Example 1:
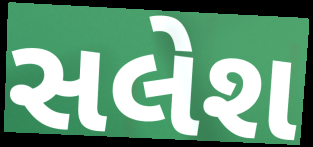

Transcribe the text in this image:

સલેશ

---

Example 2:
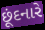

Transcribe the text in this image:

છૂંદનારે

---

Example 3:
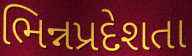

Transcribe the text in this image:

ભિન્નપ્રદેશતા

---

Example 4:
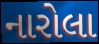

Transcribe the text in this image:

નારોલા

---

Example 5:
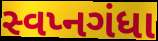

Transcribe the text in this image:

સ્વપ્નગંધા